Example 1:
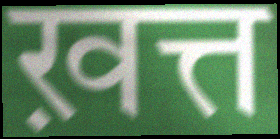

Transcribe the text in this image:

ख़त्त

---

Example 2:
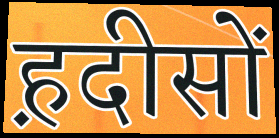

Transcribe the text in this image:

ह़दीसों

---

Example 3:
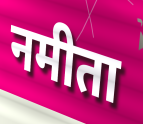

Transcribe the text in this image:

नमीता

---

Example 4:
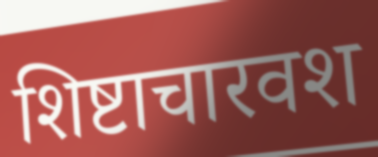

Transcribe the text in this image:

शिष्टाचारवश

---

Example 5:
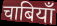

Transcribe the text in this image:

चाबियाँ